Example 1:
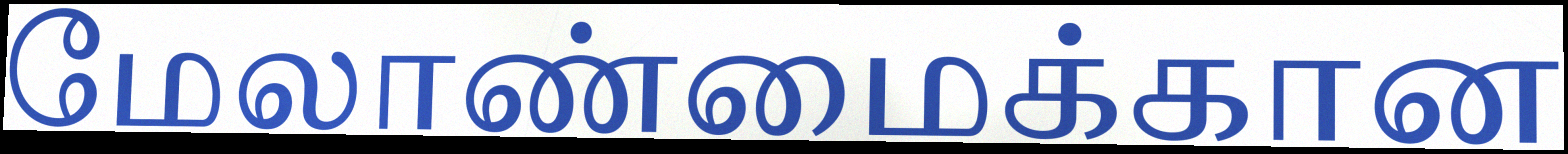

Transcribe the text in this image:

மேலாண்மைக்கான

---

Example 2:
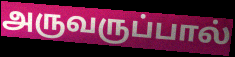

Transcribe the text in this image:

அருவருப்பால்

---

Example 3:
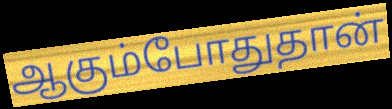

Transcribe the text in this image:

ஆகும்போதுதான்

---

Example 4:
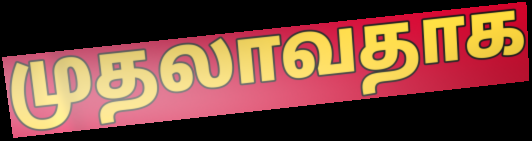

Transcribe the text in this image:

முதலாவதாக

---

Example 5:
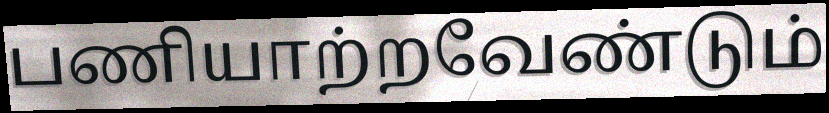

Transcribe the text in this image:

பணியாற்றவேண்டும்